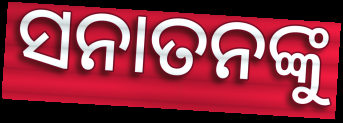
ସନାତନଙ୍କୁ